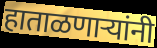
हाताळणाऱ्यांनी